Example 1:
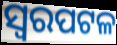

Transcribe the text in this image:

ସ୍ୱରପଟଳ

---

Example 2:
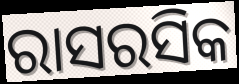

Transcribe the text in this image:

ରାସରସିକ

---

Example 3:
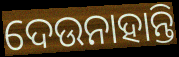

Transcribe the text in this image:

ଦେଉନାହାନ୍ତି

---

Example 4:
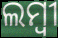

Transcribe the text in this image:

ଲମ୍ବୀ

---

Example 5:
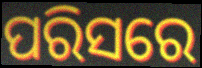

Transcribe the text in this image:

ପରିସରେ